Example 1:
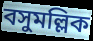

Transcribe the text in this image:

বসুমল্লিক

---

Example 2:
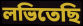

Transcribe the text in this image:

লভিতেছি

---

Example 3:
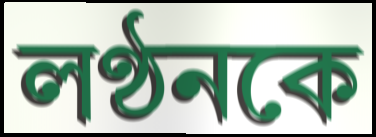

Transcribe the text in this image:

লণ্ঠনকে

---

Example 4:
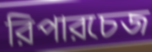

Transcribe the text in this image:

রিপারচেজ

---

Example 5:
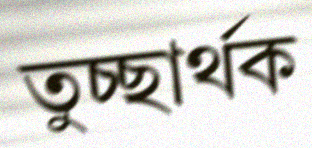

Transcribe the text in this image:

তুচ্ছার্থক